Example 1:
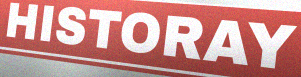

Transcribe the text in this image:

HISTORAY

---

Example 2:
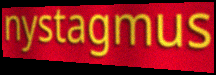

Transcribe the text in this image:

nystagmus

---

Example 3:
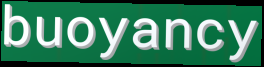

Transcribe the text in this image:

buoyancy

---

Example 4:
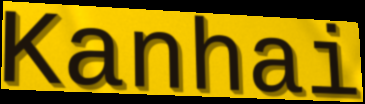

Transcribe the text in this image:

Kanhai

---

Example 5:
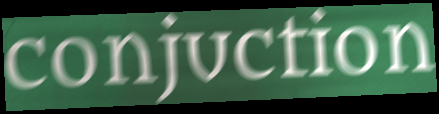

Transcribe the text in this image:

conjuction